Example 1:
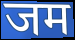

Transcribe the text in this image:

जम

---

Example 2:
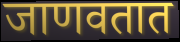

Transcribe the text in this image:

जाणवतात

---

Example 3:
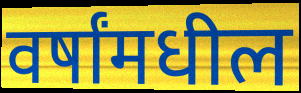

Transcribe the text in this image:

वर्षांमधील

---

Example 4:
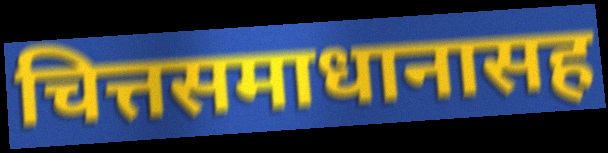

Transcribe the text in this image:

चित्तसमाधानासह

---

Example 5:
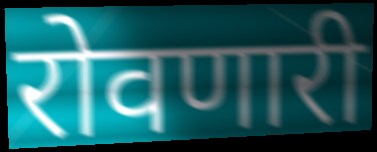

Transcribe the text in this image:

रोवणारी